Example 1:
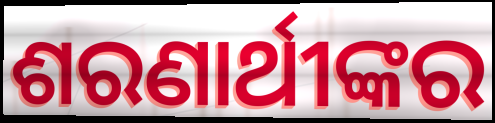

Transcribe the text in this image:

ଶରଣାର୍ଥୀଙ୍କର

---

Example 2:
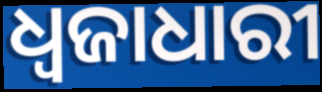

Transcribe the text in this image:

ଧ୍ବଜାଧାରୀ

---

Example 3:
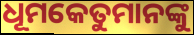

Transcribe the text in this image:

ଧୂମକେତୁମାନଙ୍କୁ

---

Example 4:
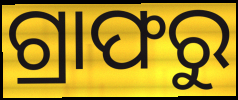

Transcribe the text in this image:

ଗ୍ରାଫରୁ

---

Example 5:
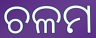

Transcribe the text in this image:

ଚଳମ